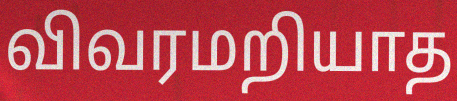
விவரமறியாத